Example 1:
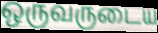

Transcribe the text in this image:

ஒருவருடைய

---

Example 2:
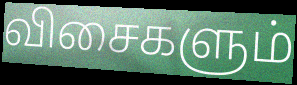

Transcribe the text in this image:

விசைகளும்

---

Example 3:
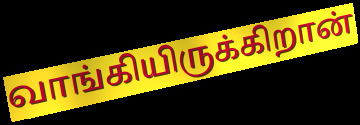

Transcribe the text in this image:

வாங்கியிருக்கிறான்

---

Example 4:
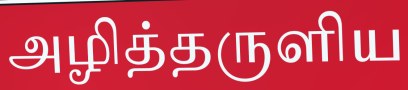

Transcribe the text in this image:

அழித்தருளிய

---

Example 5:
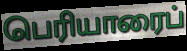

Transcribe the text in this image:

பெரியாரைப்